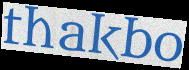
thakbo